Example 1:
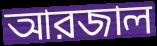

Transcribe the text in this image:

আরজাল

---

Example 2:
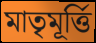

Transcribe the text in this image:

মাতৃমূর্ত্তি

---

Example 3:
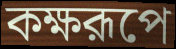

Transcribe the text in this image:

কক্ষরূপে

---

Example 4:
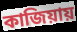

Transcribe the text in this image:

কাজিয়ায়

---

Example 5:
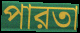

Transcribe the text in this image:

পারতা